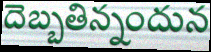
దెబ్బతిన్నందున